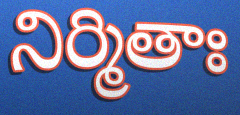
నిర్మితాః